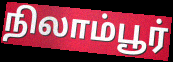
நிலாம்பூர்